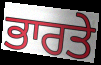
ਭਾਰਤੇ